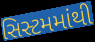
સિસ્ટમમાંથી